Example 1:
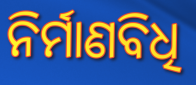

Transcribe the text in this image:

ନିର୍ମାଣବିଧି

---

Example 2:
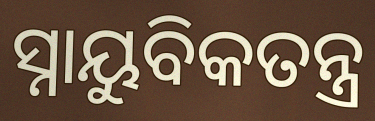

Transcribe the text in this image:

ସ୍ନାୟୁବିକତନ୍ତ୍ର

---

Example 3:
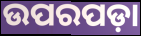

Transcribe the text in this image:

ଉପରପଡ଼ା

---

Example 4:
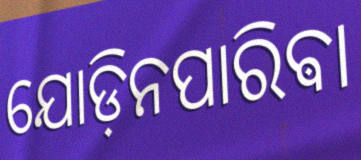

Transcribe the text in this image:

ଯୋଡ଼ିନପାରିଵା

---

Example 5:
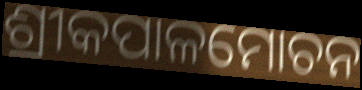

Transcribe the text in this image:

ଶ୍ରୀକପାଳମୋଚନ